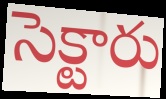
సెక్టారు